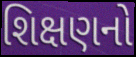
શિક્ષણનો